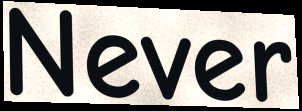
Never